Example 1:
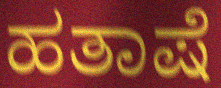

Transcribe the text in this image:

ಹತಾಷೆ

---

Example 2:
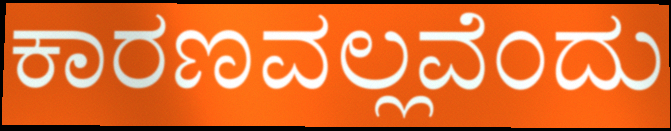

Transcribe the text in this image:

ಕಾರಣವಲ್ಲವೆಂದು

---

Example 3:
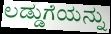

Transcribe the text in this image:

ಲಡ್ಡುಗೆಯನ್ನು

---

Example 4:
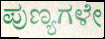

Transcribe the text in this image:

ಪುಣ್ಯಗಳೇ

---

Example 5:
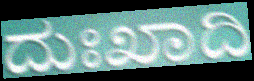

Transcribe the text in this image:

ದುಃಖಾದಿ